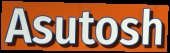
Asutosh